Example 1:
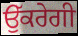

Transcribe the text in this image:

ਉੱਕਰੇਗੀ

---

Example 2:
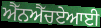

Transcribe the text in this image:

ਐੱਨਐੱਚਏਆਈ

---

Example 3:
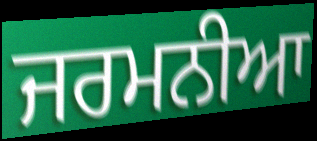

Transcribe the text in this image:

ਜਰਮਨੀਆ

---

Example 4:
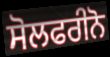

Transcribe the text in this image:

ਸੋਲਫਰੀਨੋ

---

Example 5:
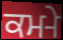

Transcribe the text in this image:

ਕਮ੍ਮੇ